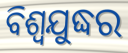
ବିଶ୍ବଯୁଦ୍ଧର